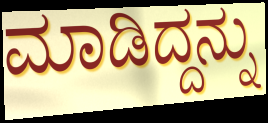
ಮಾಡಿದ್ದನ್ನು